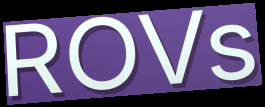
ROVs